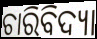
ଚାରିବିଦ୍ୟା